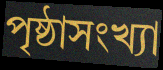
পৃষ্ঠাসংখ্যা